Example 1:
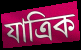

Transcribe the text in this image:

যাত্ৰিক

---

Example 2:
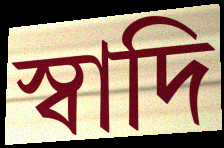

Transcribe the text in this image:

স্বাদি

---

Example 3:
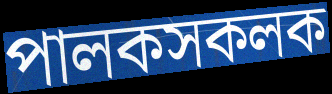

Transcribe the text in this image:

পালকসকলক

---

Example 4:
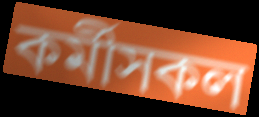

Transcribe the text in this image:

কৰ্মীসকল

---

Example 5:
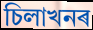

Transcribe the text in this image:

চিলাখনৰ